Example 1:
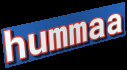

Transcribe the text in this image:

hummaa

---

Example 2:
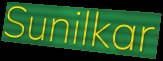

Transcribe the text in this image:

Sunilkar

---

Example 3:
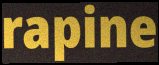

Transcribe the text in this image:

rapine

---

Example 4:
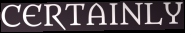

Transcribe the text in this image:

CERTAINLY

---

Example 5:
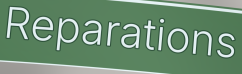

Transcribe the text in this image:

Reparations